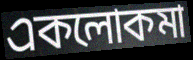
একলোকমা